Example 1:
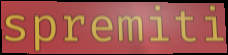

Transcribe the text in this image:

spremiti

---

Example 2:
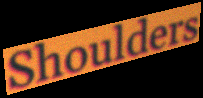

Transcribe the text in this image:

Shoulders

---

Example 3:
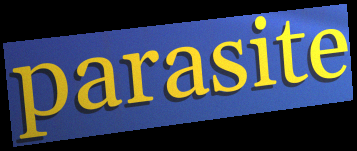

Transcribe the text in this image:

parasite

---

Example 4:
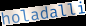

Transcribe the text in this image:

holadalli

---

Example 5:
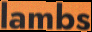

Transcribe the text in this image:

lambs